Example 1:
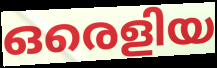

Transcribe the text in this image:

ഒരെളിയ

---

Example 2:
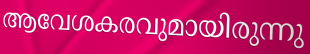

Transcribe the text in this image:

ആവേശകരവുമായിരുന്നു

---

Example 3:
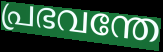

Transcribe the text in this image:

പ്രഭവന്തേ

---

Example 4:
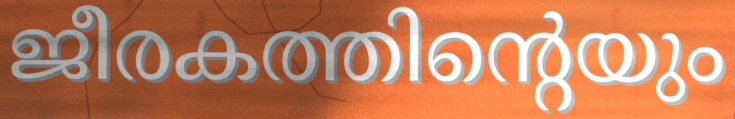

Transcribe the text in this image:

ജീരകത്തിന്റെയും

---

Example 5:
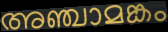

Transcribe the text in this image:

അഞ്ചാമങ്കം